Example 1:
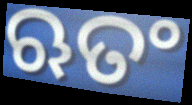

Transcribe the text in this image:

ଋତଂ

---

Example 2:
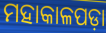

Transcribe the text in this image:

ମହାକାଳପଡ଼ା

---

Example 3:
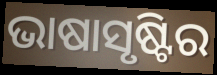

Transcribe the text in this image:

ଭାଷାସୃଷ୍ଟିର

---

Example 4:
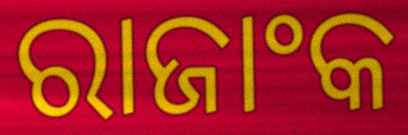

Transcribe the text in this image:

ରାଜାଂକ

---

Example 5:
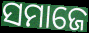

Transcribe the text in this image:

ସମାଜେ